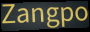
Zangpo